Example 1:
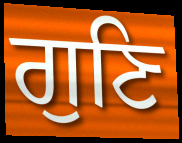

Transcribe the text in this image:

ਗੁਣਿ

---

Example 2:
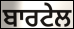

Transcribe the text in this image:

ਬਾਰਟੇਲ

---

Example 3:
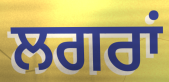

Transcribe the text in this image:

ਲਗਰਾਂ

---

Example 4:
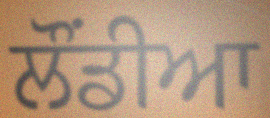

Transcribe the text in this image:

ਲੌਂਡੀਆ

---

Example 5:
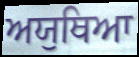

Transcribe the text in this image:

ਅਯੁਥਿਆ